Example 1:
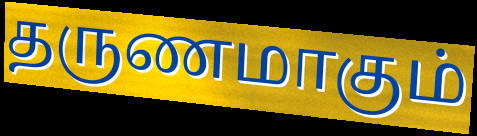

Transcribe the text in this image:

தருணமாகும்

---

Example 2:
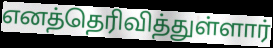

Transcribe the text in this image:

எனத்தெரிவித்துள்ளார்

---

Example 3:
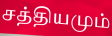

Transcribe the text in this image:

சத்தியமும்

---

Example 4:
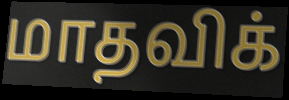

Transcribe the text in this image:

மாதவிக்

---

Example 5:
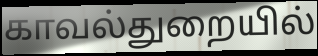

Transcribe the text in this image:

காவல்துறையில்